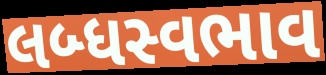
લબ્ધસ્વભાવ